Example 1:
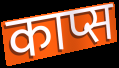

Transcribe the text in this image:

काप्स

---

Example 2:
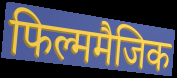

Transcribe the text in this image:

फिल्ममैजिक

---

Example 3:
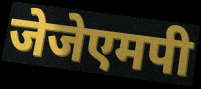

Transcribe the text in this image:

जेजेएमपी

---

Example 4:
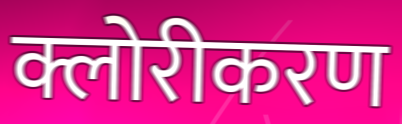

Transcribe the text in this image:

क्लोरीकरण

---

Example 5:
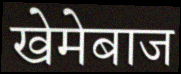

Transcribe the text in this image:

खेमेबाज